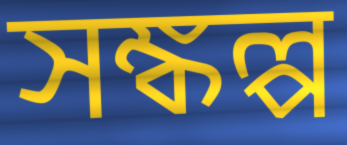
সঙ্কল্প